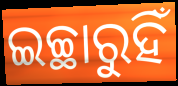
ଇଚ୍ଛାରୁହିଁ